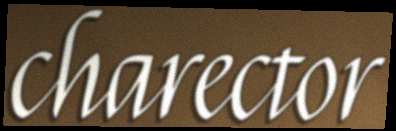
charector